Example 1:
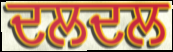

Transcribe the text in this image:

ਦਲਦਲ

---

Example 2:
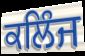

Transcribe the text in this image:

ਕਲਿੰਜ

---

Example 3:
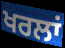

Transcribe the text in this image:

ਖਰਲਾਂ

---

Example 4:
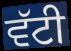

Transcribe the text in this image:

ਵੱਟੀ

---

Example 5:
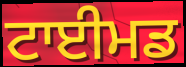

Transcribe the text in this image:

ਟਾਈਮਡ